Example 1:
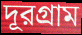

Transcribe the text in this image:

দূরগ্রাম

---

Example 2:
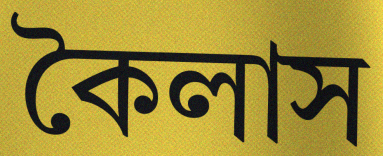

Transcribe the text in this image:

কৈলাস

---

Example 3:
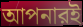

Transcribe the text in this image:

আপনারই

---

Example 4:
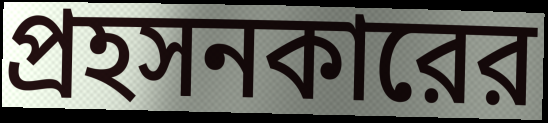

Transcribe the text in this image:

প্রহসনকারের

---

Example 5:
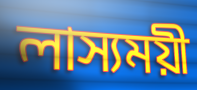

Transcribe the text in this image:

লাস্যময়ী